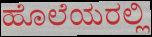
ಹೊಲೆಯರಲ್ಲಿ